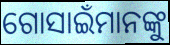
ଗୋସାଇଁମାନଙ୍କୁ